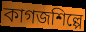
কাগজশিল্পে